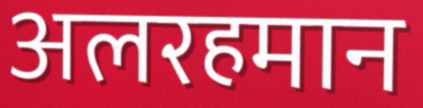
अलरहमान